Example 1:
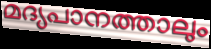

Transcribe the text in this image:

മദ്യപാനത്താലും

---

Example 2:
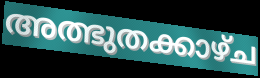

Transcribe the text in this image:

അത്ഭുതക്കാഴ്ച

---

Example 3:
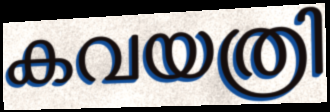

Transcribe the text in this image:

കവയത്രി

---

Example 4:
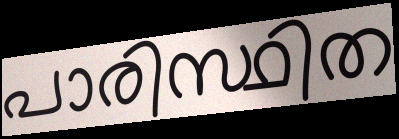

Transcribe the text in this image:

പാരിസ്ഥിത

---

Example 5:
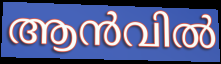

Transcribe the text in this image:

ആൻവിൽ